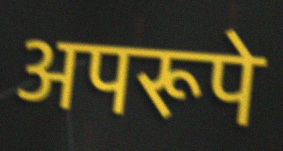
अपरूपे